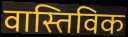
वास्तिविक